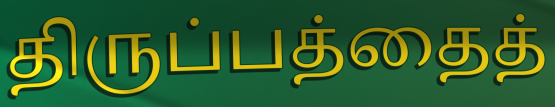
திருப்பத்தைத்